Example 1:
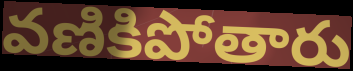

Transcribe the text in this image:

వణికిపోతారు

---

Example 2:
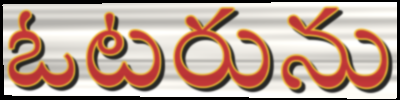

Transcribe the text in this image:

ఓటరును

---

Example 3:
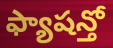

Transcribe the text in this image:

ఫ్యాషన్తో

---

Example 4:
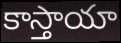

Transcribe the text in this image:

కాస్తాయా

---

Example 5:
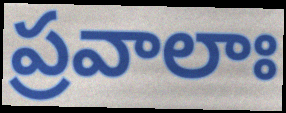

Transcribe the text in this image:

ప్రవాలాః